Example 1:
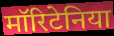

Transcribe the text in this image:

मॉरिटेनिया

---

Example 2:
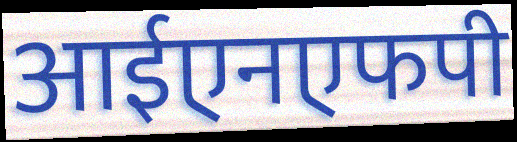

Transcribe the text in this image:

आईएनएफपी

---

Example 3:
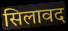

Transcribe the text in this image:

सिलावद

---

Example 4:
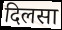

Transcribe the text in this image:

दिलसा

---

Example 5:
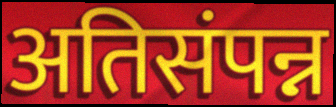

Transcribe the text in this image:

अतिसंपन्न